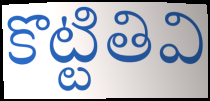
కొట్టితివి